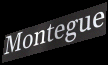
Montegue